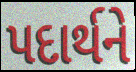
પદાર્થને